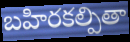
బహిరకల్పితా